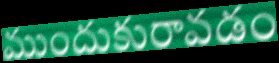
ముందుకురావడం